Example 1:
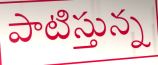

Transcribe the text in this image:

పాటిస్తున్న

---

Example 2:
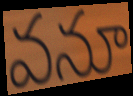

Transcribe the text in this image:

వనూ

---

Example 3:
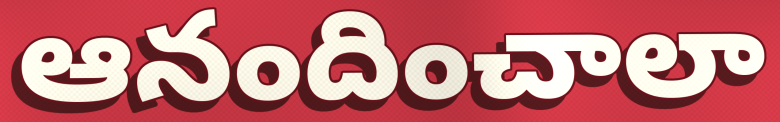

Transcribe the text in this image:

ఆనందించాలా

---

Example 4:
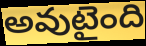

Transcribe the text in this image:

అవుటైంది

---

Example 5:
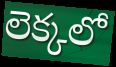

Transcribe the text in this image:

లెక్కలో